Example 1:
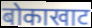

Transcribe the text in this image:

बोकाखाट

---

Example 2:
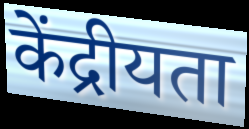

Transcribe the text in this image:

केंद्रीयता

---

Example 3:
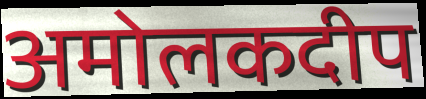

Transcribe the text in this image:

अमोलकदीप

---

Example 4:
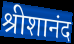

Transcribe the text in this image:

श्रीशानंद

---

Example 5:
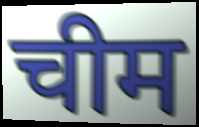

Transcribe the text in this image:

चीम